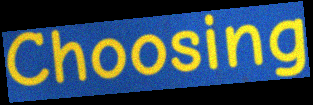
Choosing